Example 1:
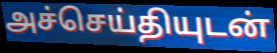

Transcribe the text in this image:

அச்செய்தியுடன்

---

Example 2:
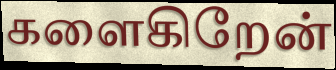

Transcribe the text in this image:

களைகிறேன்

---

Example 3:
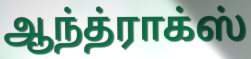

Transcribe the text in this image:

ஆந்த்ராக்ஸ்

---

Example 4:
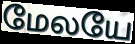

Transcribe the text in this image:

மேலயே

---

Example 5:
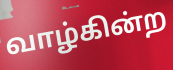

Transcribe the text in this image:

வாழ்கின்ற